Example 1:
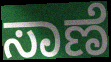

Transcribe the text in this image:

ಸಾಣೆ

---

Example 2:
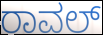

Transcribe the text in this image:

ರಾವಲ್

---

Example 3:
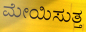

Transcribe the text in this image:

ಮೇಯಿಸುತ್ತ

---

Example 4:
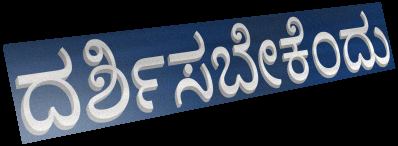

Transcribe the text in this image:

ದರ್ಶಿಸಬೇಕೆಂದು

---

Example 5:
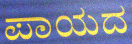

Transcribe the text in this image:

ಪಾಯದ